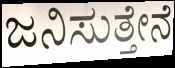
ಜನಿಸುತ್ತೇನೆ